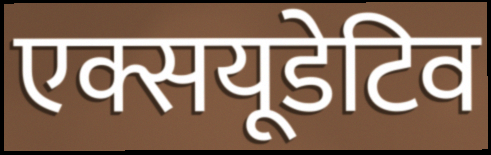
एक्सयूडेटिव